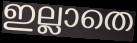
ഇല്ലാതെ